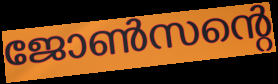
ജോൺസന്റെ